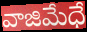
వాజిమేధే